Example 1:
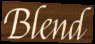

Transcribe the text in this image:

Blend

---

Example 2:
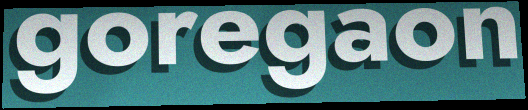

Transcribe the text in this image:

goregaon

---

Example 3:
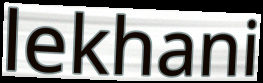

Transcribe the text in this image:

lekhani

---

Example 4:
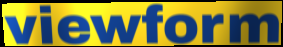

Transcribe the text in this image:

viewform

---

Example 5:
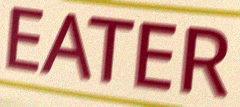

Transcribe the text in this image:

EATER